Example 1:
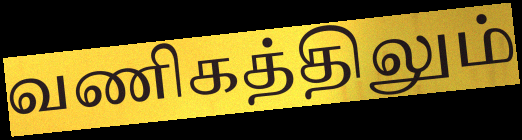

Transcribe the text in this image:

வணிகத்திலும்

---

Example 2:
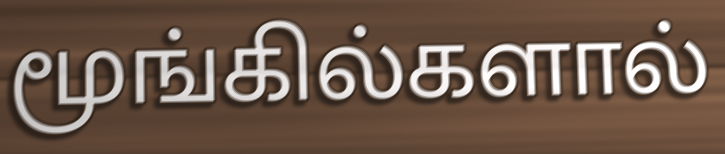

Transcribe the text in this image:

மூங்கில்களால்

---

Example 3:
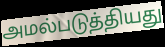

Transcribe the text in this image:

அமல்படுத்தியது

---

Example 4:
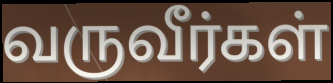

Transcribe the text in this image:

வருவீர்கள்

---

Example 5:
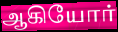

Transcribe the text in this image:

ஆகியோர்